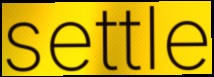
settle